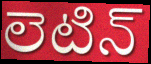
లెటిన్